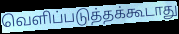
வெளிப்படுத்தக்கூடாது